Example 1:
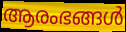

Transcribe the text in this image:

ആരംഭങ്ങൾ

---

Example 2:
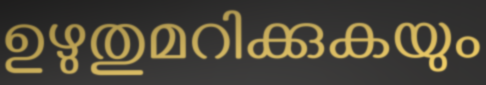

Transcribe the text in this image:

ഉഴുതുമറിക്കുകയും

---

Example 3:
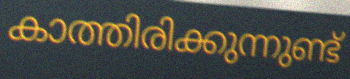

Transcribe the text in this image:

കാത്തിരിക്കുന്നുണ്ട്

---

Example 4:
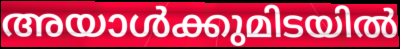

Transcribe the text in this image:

അയാൾക്കുമിടയിൽ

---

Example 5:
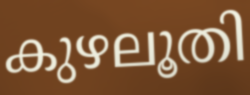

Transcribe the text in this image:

കുഴലൂതി